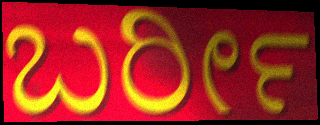
ಬರ್ರೀ